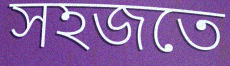
সহজতে